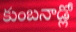
కుంబనాడ్లో